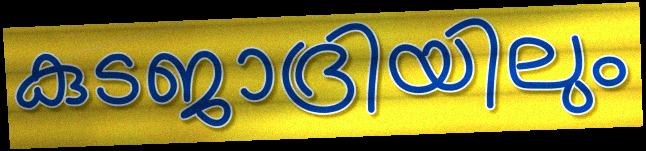
കുടജാദ്രിയിലും